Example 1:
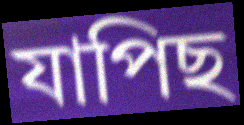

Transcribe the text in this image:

যাপিছ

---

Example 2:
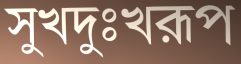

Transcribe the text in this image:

সুখদুঃখরূপ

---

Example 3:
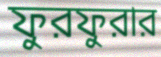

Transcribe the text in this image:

ফুরফুরার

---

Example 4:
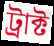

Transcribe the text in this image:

ট্রাক্ট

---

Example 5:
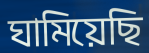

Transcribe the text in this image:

ঘামিয়েছি